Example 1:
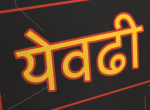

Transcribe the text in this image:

येवढी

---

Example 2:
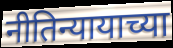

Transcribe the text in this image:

नीतिन्यायाच्या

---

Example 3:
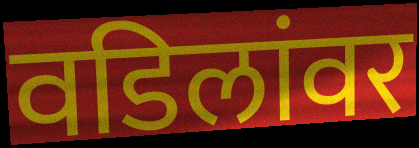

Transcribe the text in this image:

वडिलांवर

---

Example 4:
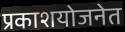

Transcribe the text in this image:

प्रकाशयोजनेत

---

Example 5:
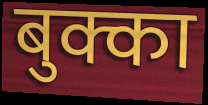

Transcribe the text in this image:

बुक्का